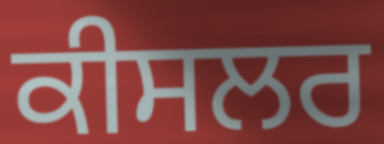
ਕੀਸਲਰ